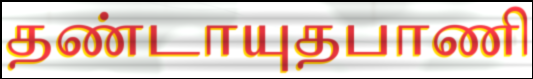
தண்டாயுதபாணி